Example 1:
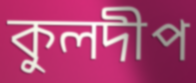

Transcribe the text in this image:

কুলদীপ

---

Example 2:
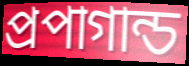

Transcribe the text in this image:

প্রপাগান্ড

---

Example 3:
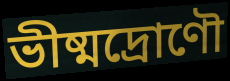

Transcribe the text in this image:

ভীষ্মদ্রোণৌ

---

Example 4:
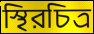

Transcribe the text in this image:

স্থিরচিত্র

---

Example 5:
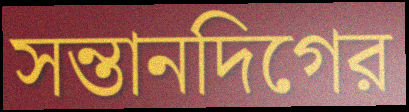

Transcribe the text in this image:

সন্তানদিগের